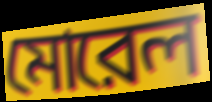
মোরেল